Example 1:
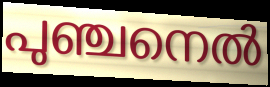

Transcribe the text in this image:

പുഞ്ചനെൽ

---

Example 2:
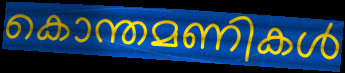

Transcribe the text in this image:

കൊന്തമണികൾ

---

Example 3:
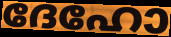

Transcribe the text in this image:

ദേഹോ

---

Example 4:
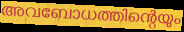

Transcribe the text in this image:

അവബോധത്തിന്റെയും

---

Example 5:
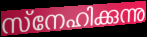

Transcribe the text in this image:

സ്‌നേഹിക്കുന്നു